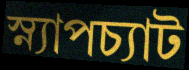
স্ন্যাপচ্যাট